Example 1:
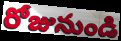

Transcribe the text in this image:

రోజునుండి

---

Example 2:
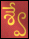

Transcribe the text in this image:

శ్వే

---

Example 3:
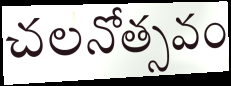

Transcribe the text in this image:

చలనోత్సవం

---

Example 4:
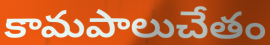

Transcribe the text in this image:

కామపాలుచేతం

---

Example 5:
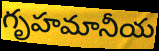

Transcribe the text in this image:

గృహమానీయ